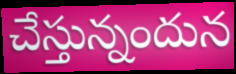
చేస్తున్నందున